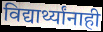
विद्यार्थ्यांनाही